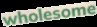
wholesome